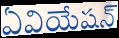
ఏవియేషన్